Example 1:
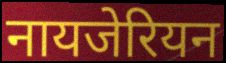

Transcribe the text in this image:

नायजेरियन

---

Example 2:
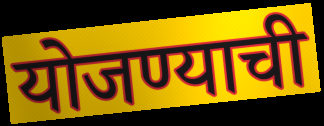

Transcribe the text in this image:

योजण्याची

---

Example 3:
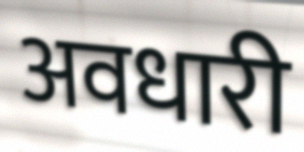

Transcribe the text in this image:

अवधारी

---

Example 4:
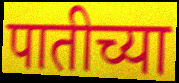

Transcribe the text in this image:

पातीच्या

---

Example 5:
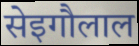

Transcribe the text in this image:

सेइगौलाल